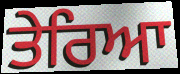
ਤੇਰਿਆ